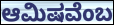
ಆಮಿಷವೆಂಬ